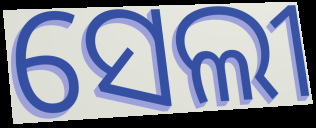
ସେଲୀ